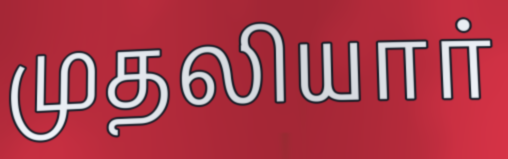
முதலியார்